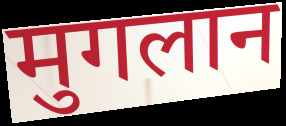
मुगलान